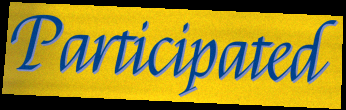
Participated